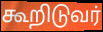
கூறிடுவர்